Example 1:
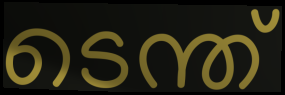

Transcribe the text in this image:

ടെന്ത്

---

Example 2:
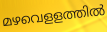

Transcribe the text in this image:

മഴവെളളത്തിൽ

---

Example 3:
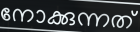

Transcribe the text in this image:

നോക്കുന്നത്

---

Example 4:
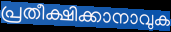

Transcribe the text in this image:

പ്രതീക്ഷിക്കാനാവുക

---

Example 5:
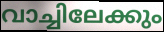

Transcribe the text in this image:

വാച്ചിലേക്കും